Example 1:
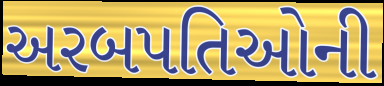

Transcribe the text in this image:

અરબપતિઓની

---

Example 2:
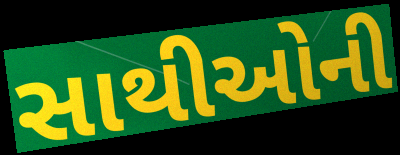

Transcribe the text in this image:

સાથીઓની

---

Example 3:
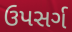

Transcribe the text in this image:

ઉપસર્ગ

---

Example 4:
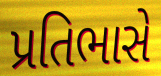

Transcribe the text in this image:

પ્રતિભાસે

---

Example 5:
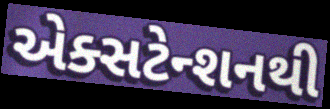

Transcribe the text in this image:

એક્સટેન્શનથી